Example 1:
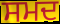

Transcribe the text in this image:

ਸਮਦ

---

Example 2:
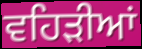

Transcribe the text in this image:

ਵਹਿੜੀਆਂ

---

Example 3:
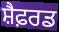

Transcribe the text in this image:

ਸ਼ੈਫ਼ਰਡ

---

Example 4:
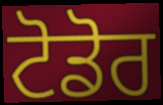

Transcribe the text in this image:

ਟੋਡੋਰ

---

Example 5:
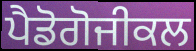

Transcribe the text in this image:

ਪੈਡੋਗੋਜੀਕਲ